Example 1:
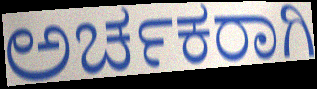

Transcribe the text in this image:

ಅರ್ಚಕರಾಗಿ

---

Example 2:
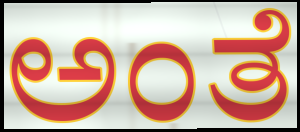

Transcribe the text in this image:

ಅಂತೆ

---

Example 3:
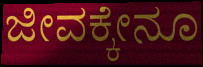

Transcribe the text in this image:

ಜೀವಕ್ಕೇನೂ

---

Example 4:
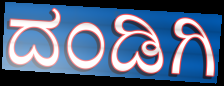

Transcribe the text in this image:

ದಂಡಿಗಿ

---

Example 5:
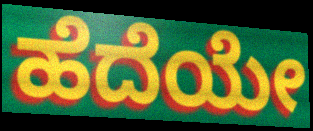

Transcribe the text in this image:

ಹೆದೆಯೇ